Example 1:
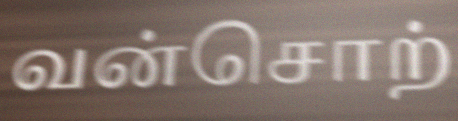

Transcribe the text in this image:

வன்சொற்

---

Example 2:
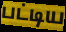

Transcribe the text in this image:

பட்டிய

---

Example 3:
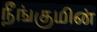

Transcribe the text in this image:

நீங்குமின்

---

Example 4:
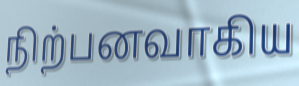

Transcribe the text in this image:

நிற்பனவாகிய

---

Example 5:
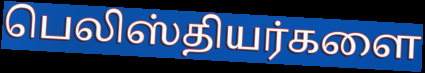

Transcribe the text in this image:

பெலிஸ்தியர்களை